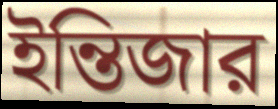
ইন্তিজার